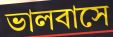
ভালবাসে